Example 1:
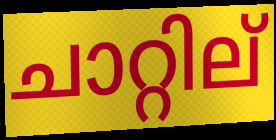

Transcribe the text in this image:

ചാറ്റില്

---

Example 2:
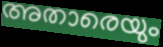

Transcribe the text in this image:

അതാരെയും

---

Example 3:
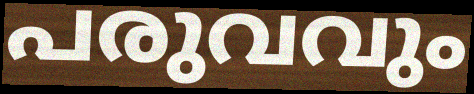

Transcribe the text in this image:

പരുവവും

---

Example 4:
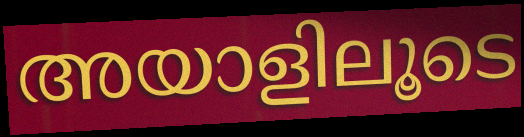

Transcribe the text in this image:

അയാളിലൂടെ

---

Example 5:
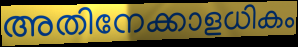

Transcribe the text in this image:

അതിനേക്കാളധികം